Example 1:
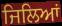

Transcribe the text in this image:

ਜਿਲਿਆਂ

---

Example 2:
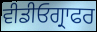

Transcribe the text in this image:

ਵੀਡੀਓਗ੍ਰਾਫਰ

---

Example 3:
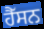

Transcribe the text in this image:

ਹੈੱਸਨ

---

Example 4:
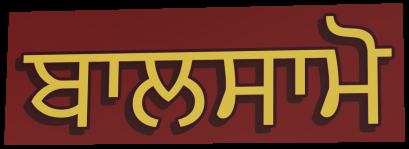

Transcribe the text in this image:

ਬਾਲਸਾਮੋ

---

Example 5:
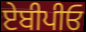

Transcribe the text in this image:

ਏਬੀਪੀਓ